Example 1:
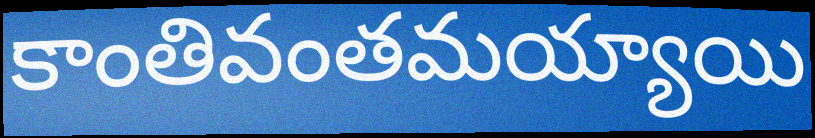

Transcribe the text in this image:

కాంతివంతమయ్యాయి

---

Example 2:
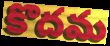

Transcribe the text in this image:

కొదమ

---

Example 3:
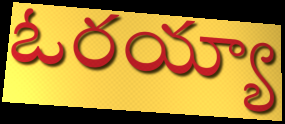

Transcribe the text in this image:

ఓరయ్యా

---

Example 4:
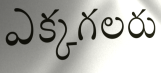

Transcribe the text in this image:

ఎక్కగలరు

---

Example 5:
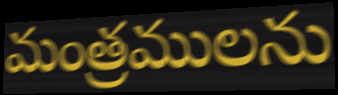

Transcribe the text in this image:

మంత్రములను